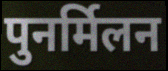
पुनर्मिलन